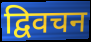
द्विवचन